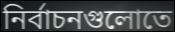
নির্বাচনগুলোতে